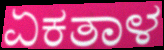
ಏಕತಾಳ